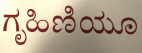
ಗೃಹಿಣಿಯೂ